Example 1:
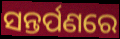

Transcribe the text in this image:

ସନ୍ତର୍ପଣରେ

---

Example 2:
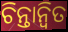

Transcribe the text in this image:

ଚିନ୍ତାନ୍ୱିତ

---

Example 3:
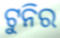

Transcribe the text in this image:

ଟୁନିର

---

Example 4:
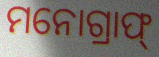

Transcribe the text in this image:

ମନୋଗ୍ରାଫ୍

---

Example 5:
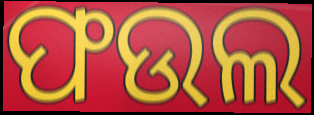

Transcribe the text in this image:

ଫଉଲ